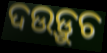
ଦଉଡ଼ୁଚ